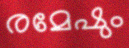
രമേഷും